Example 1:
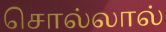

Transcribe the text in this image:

சொல்லால்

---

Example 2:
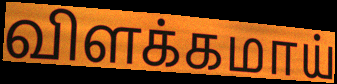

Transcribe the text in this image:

விளக்கமாய்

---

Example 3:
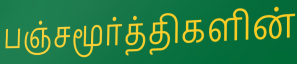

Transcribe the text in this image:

பஞ்சமூர்த்திகளின்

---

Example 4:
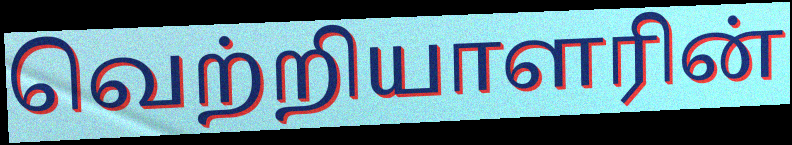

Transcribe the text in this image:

வெற்றியாளரின்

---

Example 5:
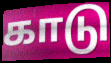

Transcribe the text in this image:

காடு